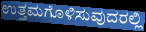
ಉತ್ತಮಗೊಳಿಸುವುದರಲ್ಲಿ